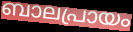
ബാലപ്രായം